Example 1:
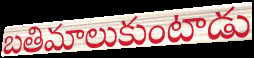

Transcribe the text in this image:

బతిమాలుకుంటాడు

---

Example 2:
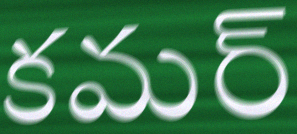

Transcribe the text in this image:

కమర్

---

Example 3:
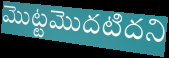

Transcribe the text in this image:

మొట్టమొదటిదని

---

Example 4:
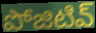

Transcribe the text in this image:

పోజిటివ్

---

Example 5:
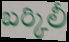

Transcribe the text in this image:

బర్కిలీ